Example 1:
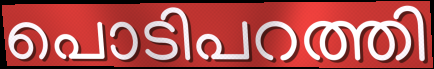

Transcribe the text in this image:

പൊടിപറത്തി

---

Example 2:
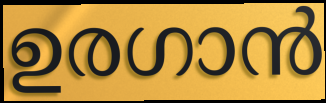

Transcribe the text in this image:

ഉരഗാൻ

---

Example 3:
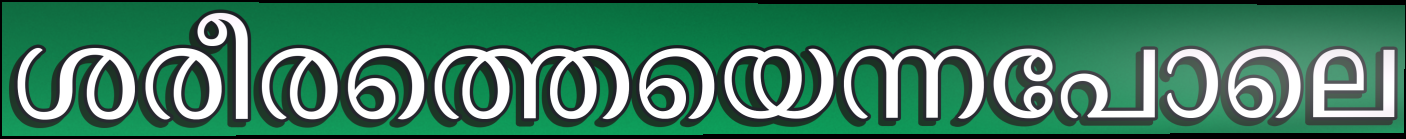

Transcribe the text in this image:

ശരീരത്തെയെന്നപോലെ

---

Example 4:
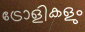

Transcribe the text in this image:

ട്രോളികളും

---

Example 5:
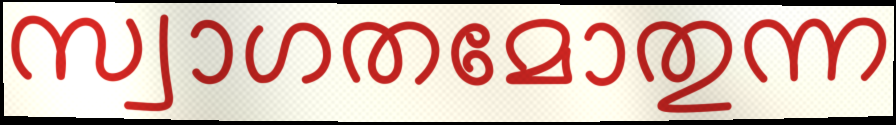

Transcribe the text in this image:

സ്വാഗതമോതുന്ന